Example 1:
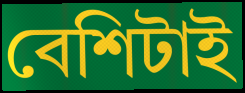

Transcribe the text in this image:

বেশিটাই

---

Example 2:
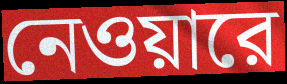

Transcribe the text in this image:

নেওয়ারে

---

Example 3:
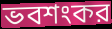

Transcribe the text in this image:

ভবশংকর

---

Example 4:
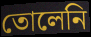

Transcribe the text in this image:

তোলেনি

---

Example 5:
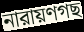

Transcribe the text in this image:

নারায়ণগছ